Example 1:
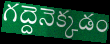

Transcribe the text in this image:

గద్దెనెక్కడం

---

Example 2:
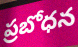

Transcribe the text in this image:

ప్రబోధన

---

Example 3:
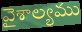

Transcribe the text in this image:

వైశాల్యము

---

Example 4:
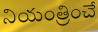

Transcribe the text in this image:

నియంత్రించే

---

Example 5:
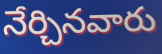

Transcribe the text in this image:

నేర్చినవారు